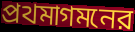
প্রথমাগমনের